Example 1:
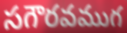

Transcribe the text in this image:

సగౌరవముగ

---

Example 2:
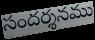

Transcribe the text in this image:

సందర్శనము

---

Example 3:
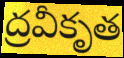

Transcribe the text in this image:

ద్రవీకృత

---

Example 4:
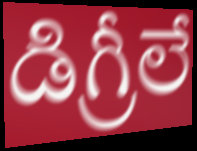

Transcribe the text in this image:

డిగ్రీలే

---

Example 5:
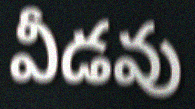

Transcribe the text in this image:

వీడవు